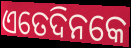
ଏତେଦିନକେ